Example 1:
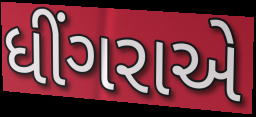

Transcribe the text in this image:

ધીંગરાએ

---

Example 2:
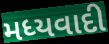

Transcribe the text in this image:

મધ્યવાદી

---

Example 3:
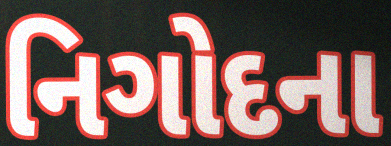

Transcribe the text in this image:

નિગોદના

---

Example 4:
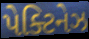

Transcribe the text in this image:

પેક્ટિનેઝ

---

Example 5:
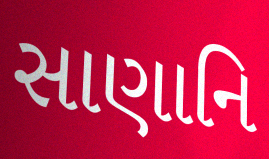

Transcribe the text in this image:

સાણાનિ